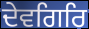
ਦੇਵਗਿਰਿ